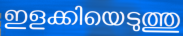
ഇളക്കിയെടുത്തു